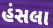
હંસલા